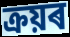
ক্ৰয়ৰ